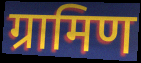
ग्रामिण